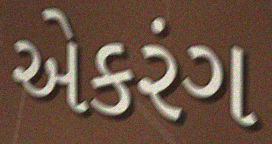
એકરંગ